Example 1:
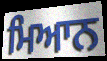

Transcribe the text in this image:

ਮਿਆਨ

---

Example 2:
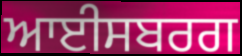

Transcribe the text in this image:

ਆਈਸਬਰਗ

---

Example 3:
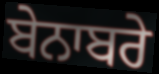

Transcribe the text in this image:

ਬੇਨਾਬਰੇ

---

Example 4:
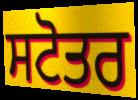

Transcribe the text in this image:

ਸਟੋਤਰ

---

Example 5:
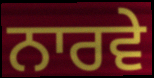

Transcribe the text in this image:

ਨਾਰਵੇ